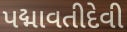
પદ્માવતીદેવી